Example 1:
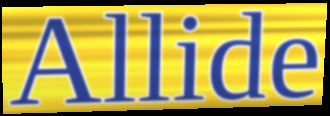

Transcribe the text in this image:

Allide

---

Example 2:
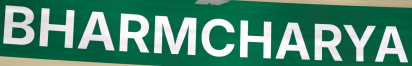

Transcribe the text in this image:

BHARMCHARYA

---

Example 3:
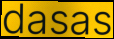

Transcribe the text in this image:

dasas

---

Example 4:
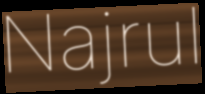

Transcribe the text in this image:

Najrul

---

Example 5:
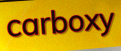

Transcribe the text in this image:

carboxy